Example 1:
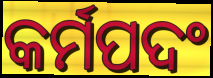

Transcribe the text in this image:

କର୍ମପଦଂ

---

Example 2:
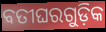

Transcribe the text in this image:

ବତୀଘରଗୁଡ଼ିକ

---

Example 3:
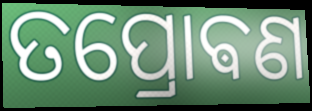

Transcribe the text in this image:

ତପ୍ରୋଵଣ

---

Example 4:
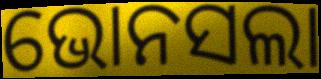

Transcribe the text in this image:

ଭୋନସଲା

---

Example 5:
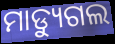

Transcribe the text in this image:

ମାଡ୍ୟୁଗଲ